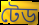
টেড